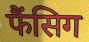
फैंसिग